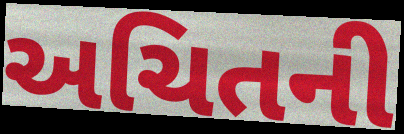
અચિતની